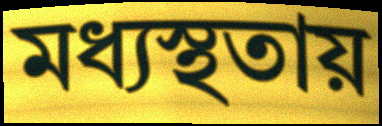
মধ্যস্থতায়